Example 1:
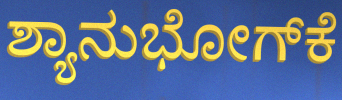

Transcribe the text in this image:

ಶ್ಯಾನುಭೋಗ್‌ಕೆ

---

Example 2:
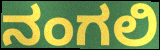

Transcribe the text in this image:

ನಂಗಲಿ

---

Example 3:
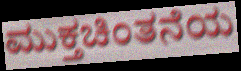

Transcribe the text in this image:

ಮುಕ್ತಚಿಂತನೆಯ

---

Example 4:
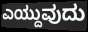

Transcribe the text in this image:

ಎಯ್ದುವುದು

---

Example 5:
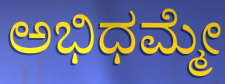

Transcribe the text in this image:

ಅಭಿಧಮ್ಮೇ